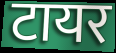
टायर